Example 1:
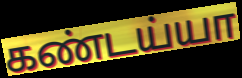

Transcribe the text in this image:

கண்டய்யா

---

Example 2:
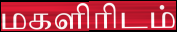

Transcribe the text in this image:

மகளிரிடம்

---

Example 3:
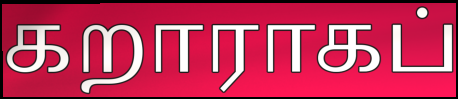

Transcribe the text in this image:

கறாராகப்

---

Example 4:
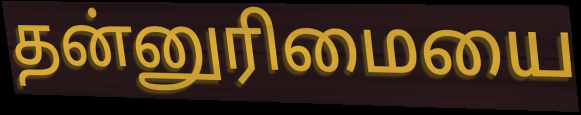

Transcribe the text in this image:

தன்னுரிமையை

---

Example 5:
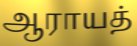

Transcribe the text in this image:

ஆராயத்